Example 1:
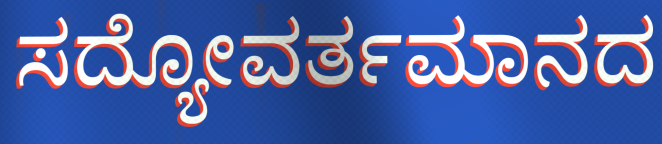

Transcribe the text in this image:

ಸದ್ಯೋವರ್ತಮಾನದ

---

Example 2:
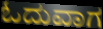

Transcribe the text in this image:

ಓದುವಾಗ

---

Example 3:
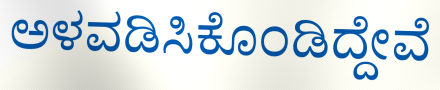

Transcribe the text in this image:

ಅಳವಡಿಸಿಕೊಂಡಿದ್ದೇವೆ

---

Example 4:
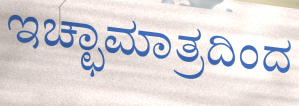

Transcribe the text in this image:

ಇಚ್ಛಾಮಾತ್ರದಿಂದ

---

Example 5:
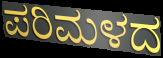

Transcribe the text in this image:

ಪರಿಮಳದ